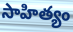
సాహిత్యం